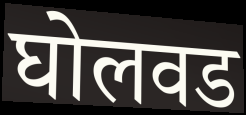
घोलवड